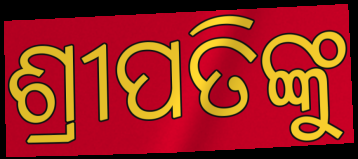
ଶ୍ରୀପତିଙ୍କୁ